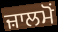
ਜ਼ਾਲਮੋਂ